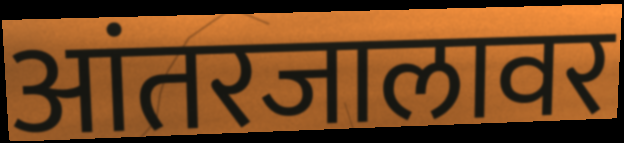
आंतरजालावर